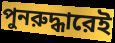
পুনরুদ্ধারেই